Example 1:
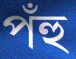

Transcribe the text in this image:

পঁহু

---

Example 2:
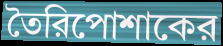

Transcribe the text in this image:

তৈরিপোশাকের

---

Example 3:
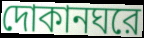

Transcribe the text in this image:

দোকানঘরে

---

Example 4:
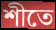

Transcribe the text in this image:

শীতে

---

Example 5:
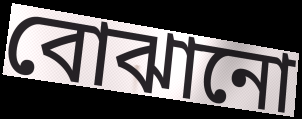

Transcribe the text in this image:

বোঝানো